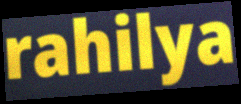
rahilya